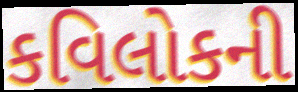
કવિલોકની